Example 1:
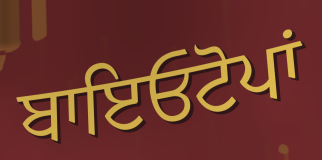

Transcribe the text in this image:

ਬਾਇਓਟੋਪਾਂ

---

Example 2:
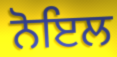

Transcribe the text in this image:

ਨੋਇਲ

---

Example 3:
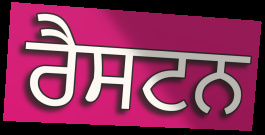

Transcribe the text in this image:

ਰੈਸਟਨ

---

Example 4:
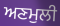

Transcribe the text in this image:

ਅਣਮੁਲੀ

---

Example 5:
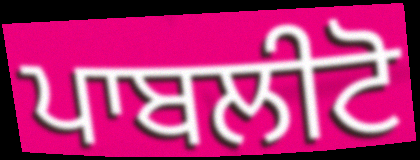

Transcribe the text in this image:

ਪਾਬਲੀਟੋ